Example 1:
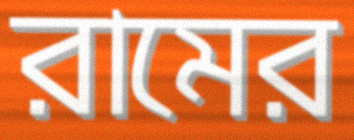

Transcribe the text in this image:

রামের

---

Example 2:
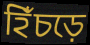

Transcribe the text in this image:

হিঁচড়ে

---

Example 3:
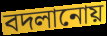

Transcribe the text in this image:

বদলানোয়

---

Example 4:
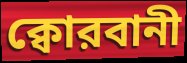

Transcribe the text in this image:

ক্বোরবানী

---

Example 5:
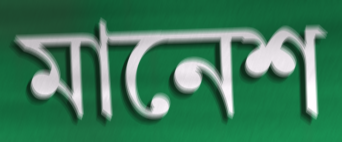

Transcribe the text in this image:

মানেশ